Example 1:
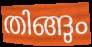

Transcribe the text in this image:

തിങ്ങും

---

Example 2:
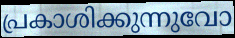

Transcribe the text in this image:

പ്രകാശിക്കുന്നുവോ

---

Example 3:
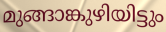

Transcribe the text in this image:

മുങ്ങാങ്കുഴിയിട്ടും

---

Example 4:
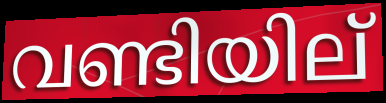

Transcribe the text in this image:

വണ്ടിയില്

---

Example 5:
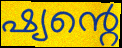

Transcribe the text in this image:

ഷ്യന്റെ